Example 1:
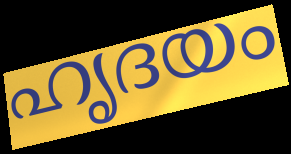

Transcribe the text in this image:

ഹൃദയം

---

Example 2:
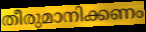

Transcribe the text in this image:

തീരുമാനിക്കണം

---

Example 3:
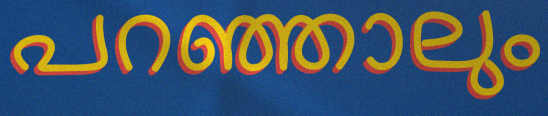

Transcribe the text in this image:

പറഞ്ഞാലും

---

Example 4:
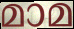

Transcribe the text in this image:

മാമ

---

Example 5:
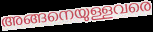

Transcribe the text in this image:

അങ്ങനെയുള്ളവരെ